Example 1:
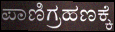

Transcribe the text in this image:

ಪಾಣಿಗ್ರಹಣಕ್ಕೆ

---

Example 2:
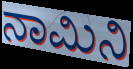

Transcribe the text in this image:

ನಾಮಿನಿ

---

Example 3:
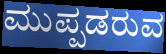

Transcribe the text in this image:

ಮುಪ್ಪಡರುವ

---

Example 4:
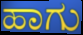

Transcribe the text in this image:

ಹಾಗು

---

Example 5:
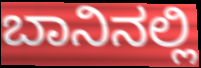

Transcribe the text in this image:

ಬಾನಿನಲ್ಲಿ